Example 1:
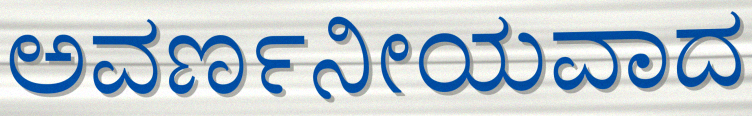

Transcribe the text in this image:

ಅವರ್ಣನೀಯವಾದ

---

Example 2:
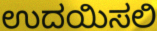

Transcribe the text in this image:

ಉದಯಿಸಲಿ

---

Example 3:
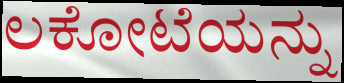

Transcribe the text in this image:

ಲಕೋಟೆಯನ್ನು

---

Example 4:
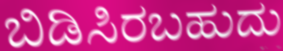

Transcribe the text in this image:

ಬಿಡಿಸಿರಬಹುದು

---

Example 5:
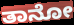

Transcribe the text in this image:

ತಾನೋ